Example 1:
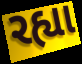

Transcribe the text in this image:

રહ્યા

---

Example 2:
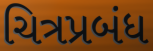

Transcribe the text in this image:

ચિત્રપ્રબંધ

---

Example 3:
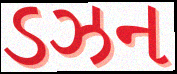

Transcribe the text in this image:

ડઝન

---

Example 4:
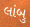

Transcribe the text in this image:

લાંબુ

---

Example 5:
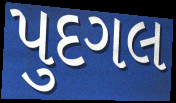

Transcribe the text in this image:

પુદગલ